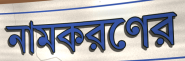
নামকরণের